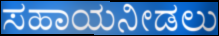
ಸಹಾಯನೀಡಲು